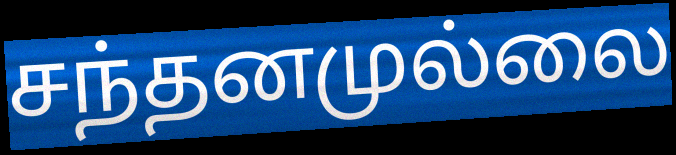
சந்தனமுல்லை